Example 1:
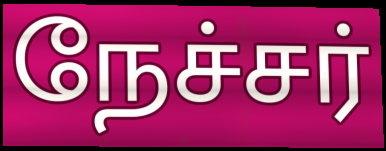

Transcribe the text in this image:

நேச்சர்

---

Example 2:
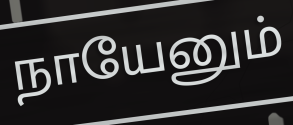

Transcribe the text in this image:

நாயேனும்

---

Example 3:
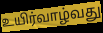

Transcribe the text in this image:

உயிர்வாழ்வது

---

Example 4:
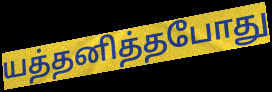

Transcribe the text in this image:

யத்தனித்தபோது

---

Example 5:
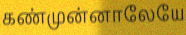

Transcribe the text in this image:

கண்முன்னாலேயே